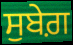
ਸੁਬੇਗ਼